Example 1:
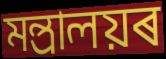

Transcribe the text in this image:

মন্ত্ৰালয়ৰ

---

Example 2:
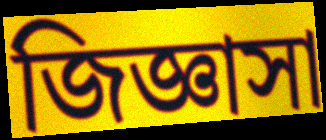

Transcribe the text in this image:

জিজ্ঞাসা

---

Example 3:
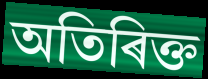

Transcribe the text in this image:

অতিৰিক্ত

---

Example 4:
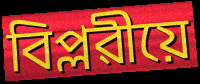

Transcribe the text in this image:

বিপ্লৱীয়ে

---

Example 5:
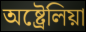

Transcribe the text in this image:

অষ্ট্ৰেলিয়া